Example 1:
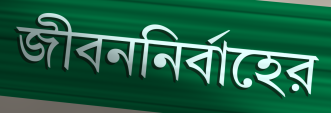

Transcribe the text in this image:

জীবননির্বাহের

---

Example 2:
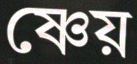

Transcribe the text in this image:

ষ্ণেয়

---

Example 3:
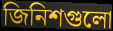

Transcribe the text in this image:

জিনিশগুলো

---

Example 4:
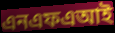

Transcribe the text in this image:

এনএফএআই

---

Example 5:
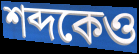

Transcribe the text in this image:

শব্দকেও